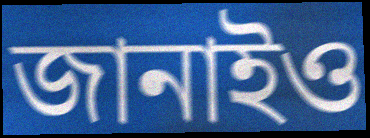
জানাইও